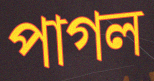
পাগল